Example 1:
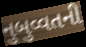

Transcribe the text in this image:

નુબુવ્વતની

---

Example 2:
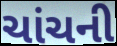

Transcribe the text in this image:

ચાંચની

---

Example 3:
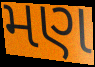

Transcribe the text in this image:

મણ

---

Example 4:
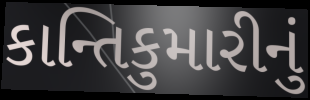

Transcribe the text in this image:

કાન્તિકુમારીનું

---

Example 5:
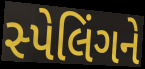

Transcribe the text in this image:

સ્પેલિંગને